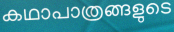
കഥാപാത്രങ്ങളുടെ